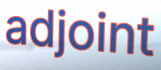
adjoint